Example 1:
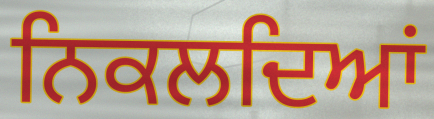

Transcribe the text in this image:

ਨਿਕਲਦਿਆਂ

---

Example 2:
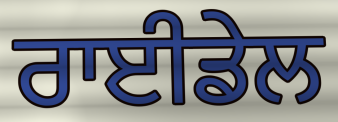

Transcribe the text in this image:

ਰਾਈਡੇਲ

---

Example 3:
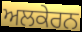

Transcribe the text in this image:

ਅਲਕੇਰਨ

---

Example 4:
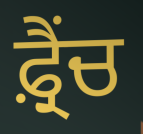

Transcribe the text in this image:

ਫ਼੍ਰੈਂਚ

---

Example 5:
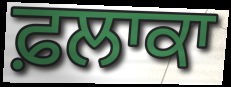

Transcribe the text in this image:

ਫ਼ਲਾਕਾ